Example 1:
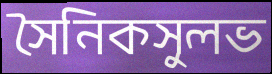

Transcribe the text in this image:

সৈনিকসুলভ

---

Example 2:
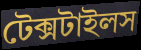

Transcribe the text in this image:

টেক্সটাইলস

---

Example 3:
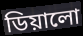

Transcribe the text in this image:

ডিয়ালো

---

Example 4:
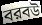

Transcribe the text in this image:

বরবউ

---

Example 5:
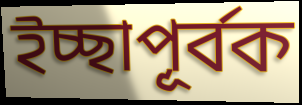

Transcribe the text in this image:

ইচ্ছাপূর্বক